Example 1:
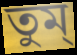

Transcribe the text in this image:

তুম্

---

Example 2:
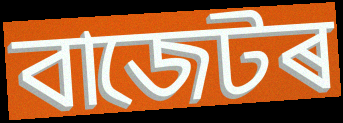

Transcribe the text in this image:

বাজেটৰ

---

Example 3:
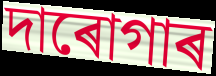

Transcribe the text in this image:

দাৰোগাৰ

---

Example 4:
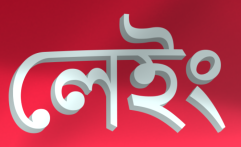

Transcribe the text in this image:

লেইং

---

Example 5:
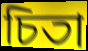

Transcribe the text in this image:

চিতা